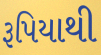
રૂપિયાથી